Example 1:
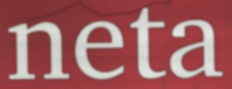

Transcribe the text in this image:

neta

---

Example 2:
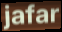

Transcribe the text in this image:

jafar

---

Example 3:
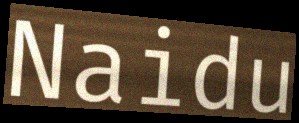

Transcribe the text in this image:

Naidu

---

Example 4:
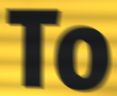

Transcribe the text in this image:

To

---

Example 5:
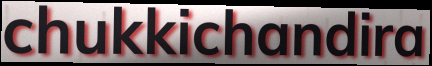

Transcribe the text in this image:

chukkichandira